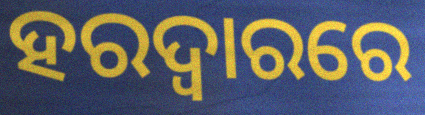
ହରଦ୍ୱାରରେ